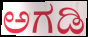
ಅಗಡಿ